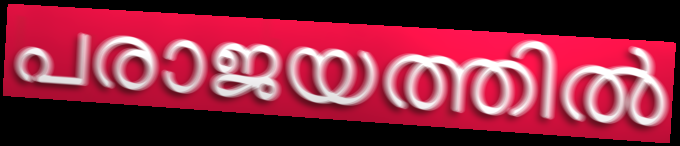
പരാജയത്തിൽ